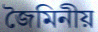
জৈমিনীয়